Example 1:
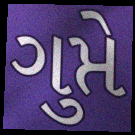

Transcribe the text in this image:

ગુપ્તે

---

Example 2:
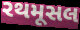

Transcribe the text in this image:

રથમૂસલ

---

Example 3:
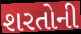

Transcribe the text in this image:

શરતોની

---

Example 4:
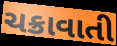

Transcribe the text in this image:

ચક્રાવાતી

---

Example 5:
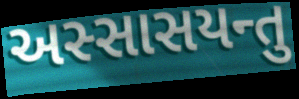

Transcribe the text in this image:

અસ્સાસયન્તુ